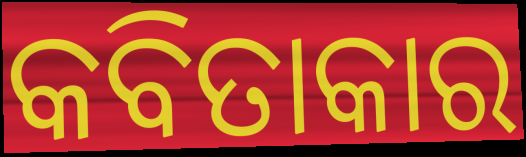
କବିତାକାର